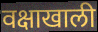
वक्षाखाली